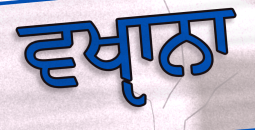
ਵਖੵਾਨਾ